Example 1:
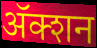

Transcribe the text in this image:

ॲक्शन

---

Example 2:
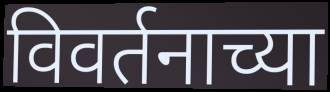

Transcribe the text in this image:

विवर्तनाच्या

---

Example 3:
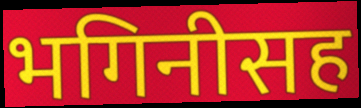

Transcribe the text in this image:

भगिनीसह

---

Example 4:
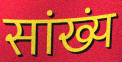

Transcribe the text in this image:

सांख्यं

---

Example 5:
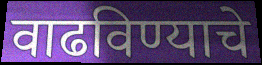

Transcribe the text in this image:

वाढविण्याचे